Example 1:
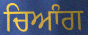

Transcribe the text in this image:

ਚਿਆੰਗ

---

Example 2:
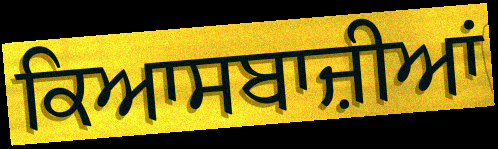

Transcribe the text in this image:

ਕਿਆਸਬਾਜ਼ੀਆਂ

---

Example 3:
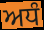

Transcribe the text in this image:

ਅਧੰ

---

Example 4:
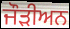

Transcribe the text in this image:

ਜੌੜੀਅਨ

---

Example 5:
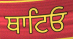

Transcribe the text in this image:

ਥਾਟਿਓ